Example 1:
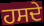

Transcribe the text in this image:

ਹਸਦੇ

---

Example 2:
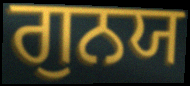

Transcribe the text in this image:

ਗੁਨਯ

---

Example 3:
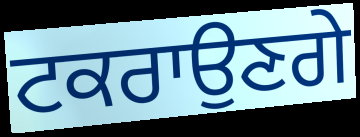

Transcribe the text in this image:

ਟਕਰਾਉਣਗੇ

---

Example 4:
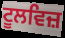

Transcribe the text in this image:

ਟੂਲਵਿਜ਼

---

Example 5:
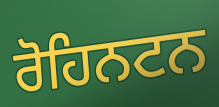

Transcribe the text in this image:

ਰੋਹਿਨਟਨ